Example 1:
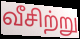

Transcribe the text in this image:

வீசிற்று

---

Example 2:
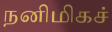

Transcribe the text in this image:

நனிமிகச்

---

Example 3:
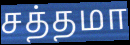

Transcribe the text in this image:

சத்தமா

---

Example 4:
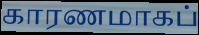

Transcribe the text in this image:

காரணமாகப்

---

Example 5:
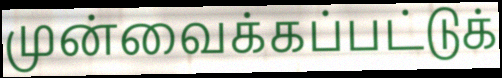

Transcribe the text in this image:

முன்வைக்கப்பட்டுக்